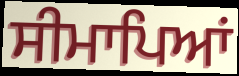
ਸੀਮਾਪਿਆਂ